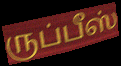
ருப்பீஸ்